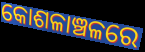
କୋଶଳାଞ୍ଚଳରେ